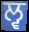
ਲ੍ਵ